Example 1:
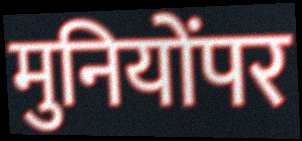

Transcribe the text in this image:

मुनियोंपर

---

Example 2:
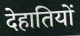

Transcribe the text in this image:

देहातियों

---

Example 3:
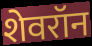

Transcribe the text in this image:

शेवरॉन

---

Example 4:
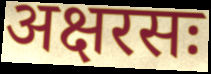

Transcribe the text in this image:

अक्षरसः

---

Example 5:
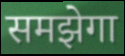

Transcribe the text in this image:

समझेगा